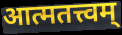
आत्मतत्त्वम्